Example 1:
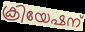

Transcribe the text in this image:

ക്രിയേഷന്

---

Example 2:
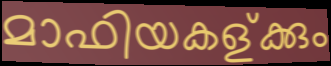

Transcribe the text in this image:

മാഫിയകള്ക്കും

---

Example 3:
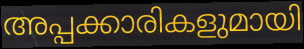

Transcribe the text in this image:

അപ്പക്കാരികളുമായി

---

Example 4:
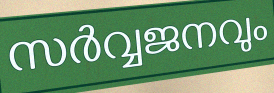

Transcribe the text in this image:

സർവ്വജനവും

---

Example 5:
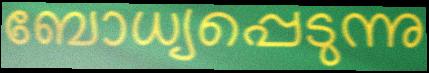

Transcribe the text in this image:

ബോധ്യപ്പെടുന്നു